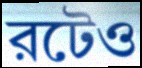
রটেও